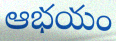
ఆభయం